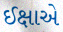
ઈક્ષાએ